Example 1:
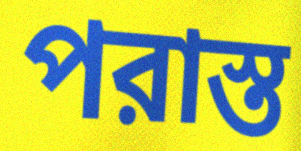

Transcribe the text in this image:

পরাস্ত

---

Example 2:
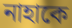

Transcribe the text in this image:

নাহাকে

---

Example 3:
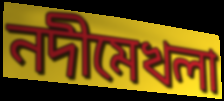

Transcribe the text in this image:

নদীমেখলা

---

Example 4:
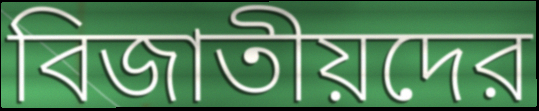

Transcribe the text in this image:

বিজাতীয়দের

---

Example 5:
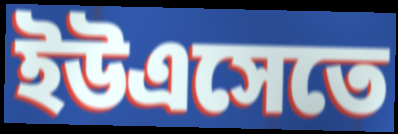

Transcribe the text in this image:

ইউএসেতে